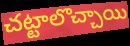
చట్టాలొచ్చాయి